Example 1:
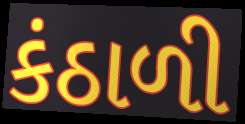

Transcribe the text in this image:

કંઠાળી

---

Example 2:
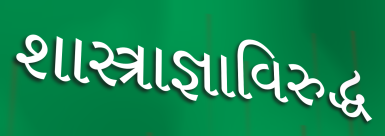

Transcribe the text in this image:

શાસ્ત્રાજ્ઞાવિરુદ્ધ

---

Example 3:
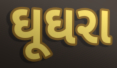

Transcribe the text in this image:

ઘૂઘરા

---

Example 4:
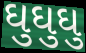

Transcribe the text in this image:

ઘુઘુઘુ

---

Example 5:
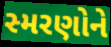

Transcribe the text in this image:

સ્મરણોને